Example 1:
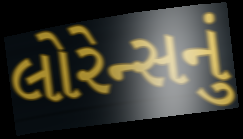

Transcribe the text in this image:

લોરેન્સનું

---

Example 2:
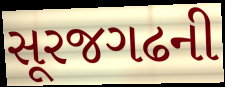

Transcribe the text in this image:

સૂરજગઢની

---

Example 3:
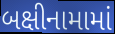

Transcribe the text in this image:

બક્ષીનામામાં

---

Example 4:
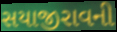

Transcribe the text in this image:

સયાજીરાવની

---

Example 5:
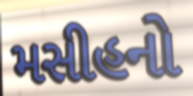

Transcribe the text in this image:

મસીહનો